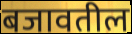
बजावतील